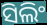
ସିଲିଂ